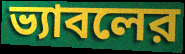
ভ্যাবলের